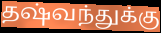
தஷ்வந்துக்கு